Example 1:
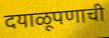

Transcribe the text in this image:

दयाळूपणाची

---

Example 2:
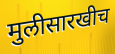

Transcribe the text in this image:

मुलीसारखीच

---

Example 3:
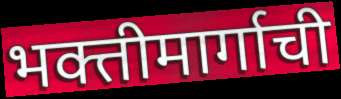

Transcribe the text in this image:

भक्तीमार्गाची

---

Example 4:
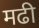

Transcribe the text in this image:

मढी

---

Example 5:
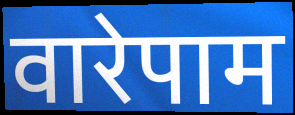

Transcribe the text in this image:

वारेपाम